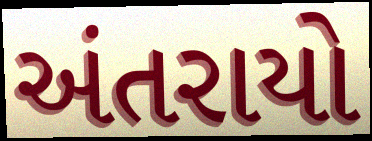
અંતરાયો